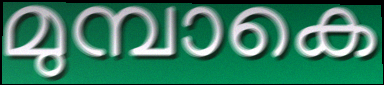
മുമ്പാകെ